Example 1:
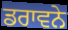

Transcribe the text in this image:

ਡਰਾਵਨੇ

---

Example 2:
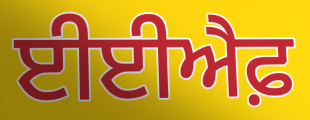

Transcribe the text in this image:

ਈਈਐਫ਼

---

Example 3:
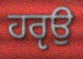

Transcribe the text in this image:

ਹਰੵਉ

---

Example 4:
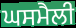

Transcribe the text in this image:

ਘਸਮੈਲੀ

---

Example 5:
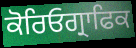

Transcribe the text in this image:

ਕੋਰਿਓਗ੍ਰਾਫਿਕ